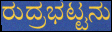
ರುದ್ರಭಟ್ಟನು